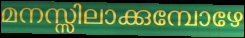
മനസ്സിലാക്കുമ്പോഴേ